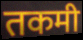
तकमी